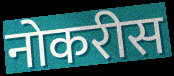
नोकरीस